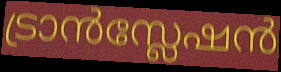
ട്രാൻസ്ലേഷൻ